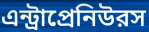
এন্ট্রাপ্রেনিউরস